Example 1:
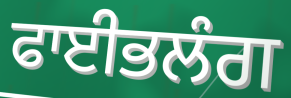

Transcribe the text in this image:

ਫਾਈਭਲੰਗ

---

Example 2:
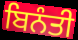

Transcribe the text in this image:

ਬਿਨੰਤੀ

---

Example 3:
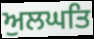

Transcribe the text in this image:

ਅੁਲਘਤਿ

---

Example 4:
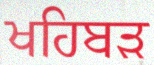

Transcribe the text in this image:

ਖਹਿਬੜ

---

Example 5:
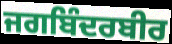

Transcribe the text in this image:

ਜਗਬਿੰਦਰਬੀਰ